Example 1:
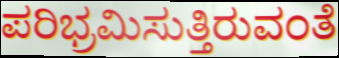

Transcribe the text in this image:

ಪರಿಭ್ರಮಿಸುತ್ತಿರುವಂತೆ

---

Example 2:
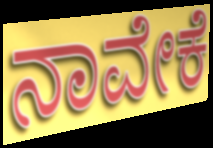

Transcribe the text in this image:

ನಾವೇಕೆ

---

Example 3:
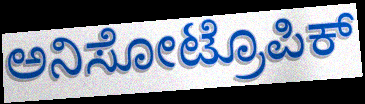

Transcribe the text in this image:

ಅನಿಸೋಟ್ರೊಪಿಕ್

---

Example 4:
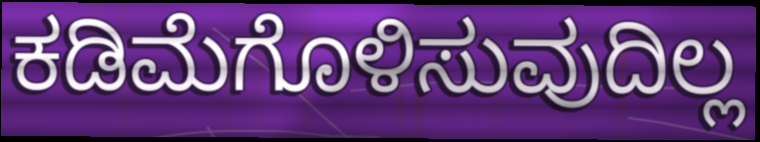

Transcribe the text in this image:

ಕಡಿಮೆಗೊಳಿಸುವುದಿಲ್ಲ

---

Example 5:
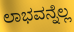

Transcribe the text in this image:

ಲಾಭವನ್ನೆಲ್ಲ